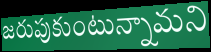
జరుపుకుంటున్నామని